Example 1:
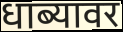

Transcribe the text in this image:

धाब्यावर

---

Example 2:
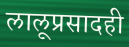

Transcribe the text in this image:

लालूप्रसादही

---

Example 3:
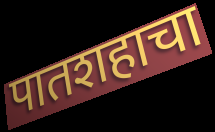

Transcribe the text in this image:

पातशहाचा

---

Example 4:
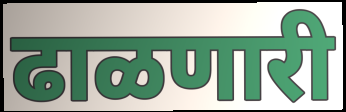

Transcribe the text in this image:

ढाळणारी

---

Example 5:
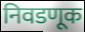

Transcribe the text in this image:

निवडणूक